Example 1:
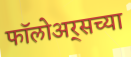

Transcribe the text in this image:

फॉलोअर्सच्या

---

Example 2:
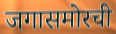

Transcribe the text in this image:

जगासमोरची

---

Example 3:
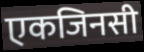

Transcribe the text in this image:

एकजिनसी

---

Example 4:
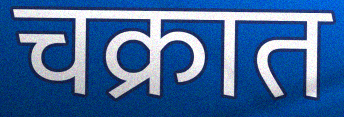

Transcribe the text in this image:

चक्रात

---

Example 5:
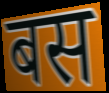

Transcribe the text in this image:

बस